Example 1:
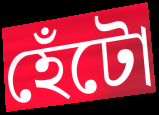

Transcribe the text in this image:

হেঁটো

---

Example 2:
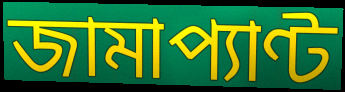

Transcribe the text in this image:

জামাপ্যাণ্ট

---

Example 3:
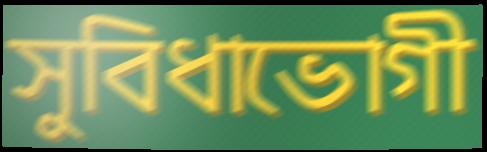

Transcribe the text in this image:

সুবিধাভোগী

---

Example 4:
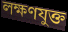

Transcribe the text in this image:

লক্ষণযুক্ত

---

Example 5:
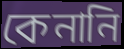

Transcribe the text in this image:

কেনানি